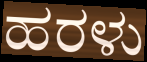
ಹರಳು